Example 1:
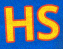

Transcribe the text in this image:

HS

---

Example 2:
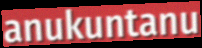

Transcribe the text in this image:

anukuntanu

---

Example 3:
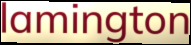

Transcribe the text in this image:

lamington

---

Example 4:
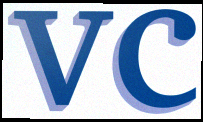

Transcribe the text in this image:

vc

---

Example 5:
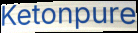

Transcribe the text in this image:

Ketonpure